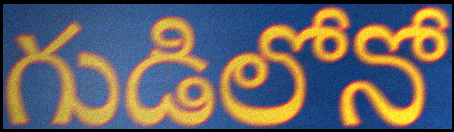
గుడిలోనో